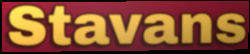
Stavans